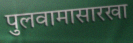
पुलवामासारखा